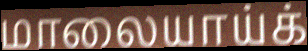
மாலையாய்க்